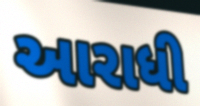
આરાધી